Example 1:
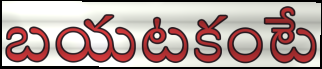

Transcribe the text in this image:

బయటకంటే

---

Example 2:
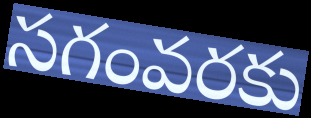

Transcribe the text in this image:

సగంవరకు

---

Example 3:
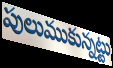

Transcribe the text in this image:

పులుముకున్నట్టు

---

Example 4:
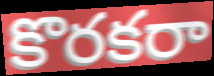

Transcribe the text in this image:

కొరకరా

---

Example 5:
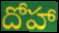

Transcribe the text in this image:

దోహా